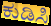
ಕುಡಿಸಿ